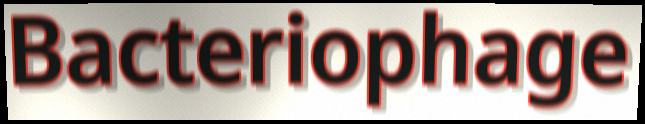
Bacteriophage